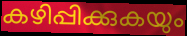
കഴിപ്പിക്കുകയും